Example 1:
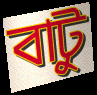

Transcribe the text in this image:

বাটু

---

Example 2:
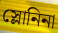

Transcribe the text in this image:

স্লোনিনা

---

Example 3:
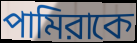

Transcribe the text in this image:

পামিরাকে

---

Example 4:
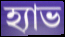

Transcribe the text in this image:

হ্যাভ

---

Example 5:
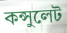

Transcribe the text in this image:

কন্সুলেট